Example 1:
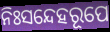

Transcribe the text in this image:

ନିଃସନ୍ଦେହରୂପେ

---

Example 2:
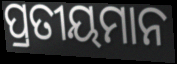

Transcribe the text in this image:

ପ୍ରତୀୟମାନ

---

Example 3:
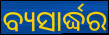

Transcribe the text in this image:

ବ୍ୟସାର୍ଦ୍ଧର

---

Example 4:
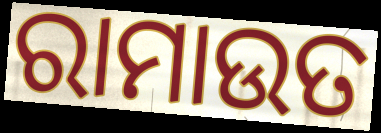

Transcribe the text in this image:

ରାମାଉତ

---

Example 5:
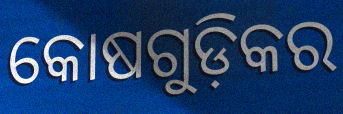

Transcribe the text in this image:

କୋଷଗୁଡ଼ିକର